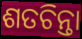
ଶତଚିନ୍ତା